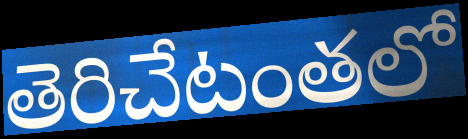
తెరిచేటంతలో